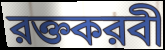
রক্তকরবী